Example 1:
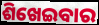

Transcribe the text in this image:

ଶିଖେଇବାର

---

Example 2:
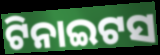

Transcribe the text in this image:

ଟିନାଇଟସ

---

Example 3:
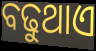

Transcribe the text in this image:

ବଢୁଥାଏ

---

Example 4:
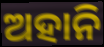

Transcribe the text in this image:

ଅହାନି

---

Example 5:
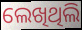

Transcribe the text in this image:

ଲେଖିଥିଲି